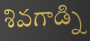
శివగాడ్ని